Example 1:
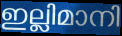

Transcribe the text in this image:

ഇല്ലിമാനി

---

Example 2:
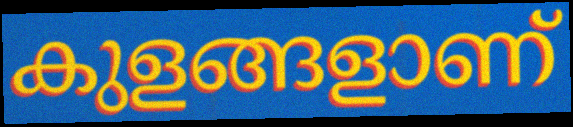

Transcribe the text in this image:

കുളങ്ങളാണ്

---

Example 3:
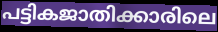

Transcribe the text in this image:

പട്ടികജാതിക്കാരിലെ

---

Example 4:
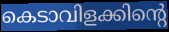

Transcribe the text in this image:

കെടാവിളക്കിന്റെ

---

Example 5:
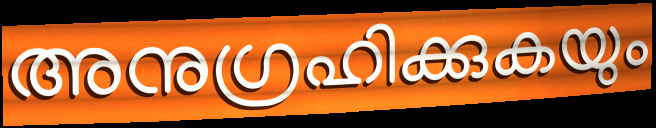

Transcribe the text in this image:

അനുഗ്രഹിക്കുകയും